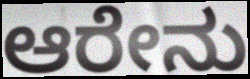
ಆರೇನು